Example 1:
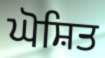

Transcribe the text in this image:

ਘੋਸ਼ਿਤ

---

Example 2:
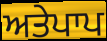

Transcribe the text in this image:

ਅਤੇਪਾਪ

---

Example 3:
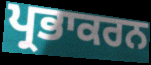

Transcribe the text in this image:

ਪ੍ਰਭਾਕਰਨ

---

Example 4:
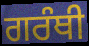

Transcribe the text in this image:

ਗਰੰਥੀ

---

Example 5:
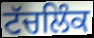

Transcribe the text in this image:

ਟੱਚਲਿੰਕ